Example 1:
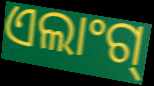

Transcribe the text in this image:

ଏଲାଂଗ୍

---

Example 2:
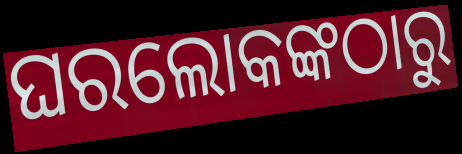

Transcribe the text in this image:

ଘରଲୋକଙ୍କଠାରୁ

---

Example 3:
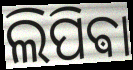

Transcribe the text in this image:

ଲିପିଵା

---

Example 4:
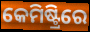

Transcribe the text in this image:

କେମିଷ୍ଟ୍ରିରେ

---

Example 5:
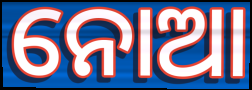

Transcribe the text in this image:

ନୋଆ